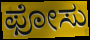
ಫೋಸು